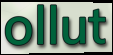
ollut